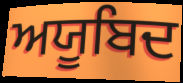
ਅਯੂਬਿਦ